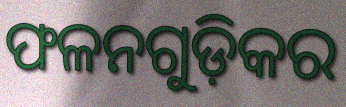
ଫଳନଗୁଡ଼ିକର